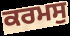
ਕਰਮਸੁ